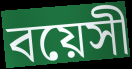
বয়েসী